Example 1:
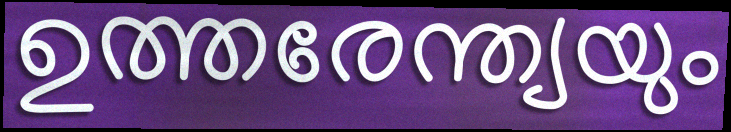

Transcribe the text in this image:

ഉത്തരേന്ത്യയും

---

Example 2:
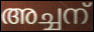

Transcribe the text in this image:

അച്ചന്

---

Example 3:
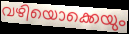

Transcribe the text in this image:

വഴിയൊക്കെയും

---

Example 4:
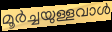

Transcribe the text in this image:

മൂർച്ചയുള്ളവാൾ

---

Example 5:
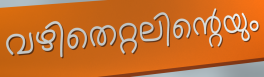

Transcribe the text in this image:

വഴിതെറ്റലിന്റെയും